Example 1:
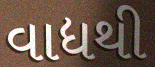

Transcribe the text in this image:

વાદ્યથી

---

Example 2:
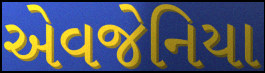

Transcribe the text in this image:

એવજેનિયા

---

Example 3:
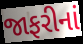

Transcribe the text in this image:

જાફરીનાં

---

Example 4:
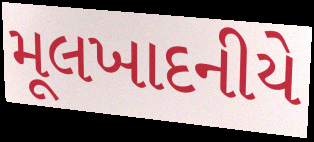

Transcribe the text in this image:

મૂલખાદનીયે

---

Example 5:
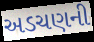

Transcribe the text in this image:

અડચણની